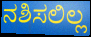
ನಶಿಸಲಿಲ್ಲ